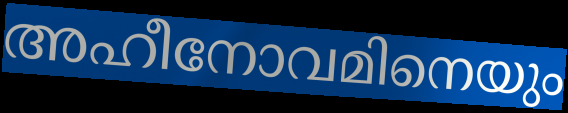
അഹീനോവമിനെയും